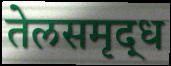
तेलसमृद्ध